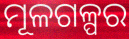
ମୂଳଗଳ୍ପର